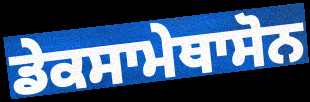
ਡੇਕਸਾਮੇਥਾਸੋਨ